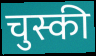
चुस्की